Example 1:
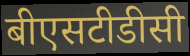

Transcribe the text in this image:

बीएसटीडीसी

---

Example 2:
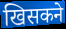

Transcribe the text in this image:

खिसकने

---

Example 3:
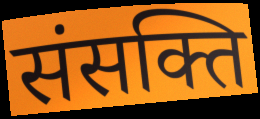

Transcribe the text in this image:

संसक्ति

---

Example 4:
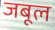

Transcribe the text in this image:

जबूल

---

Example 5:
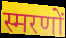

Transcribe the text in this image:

स्मरणों